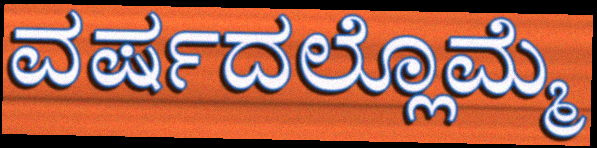
ವರ್ಷದಲ್ಲೊಮ್ಮೆ